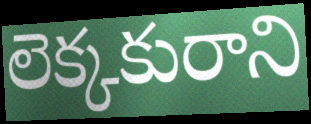
లెక్కకురాని